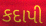
કદાપી